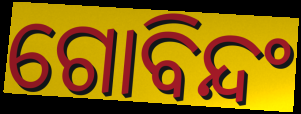
ଗୋବିନ୍ଦଂ